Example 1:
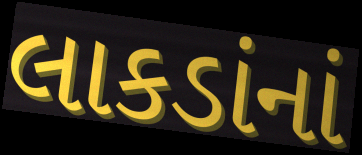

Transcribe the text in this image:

લાકડાંનાં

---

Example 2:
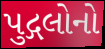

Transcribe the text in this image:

પુદ્ગલોનો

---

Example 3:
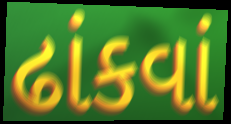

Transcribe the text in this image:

ઢાંકવાં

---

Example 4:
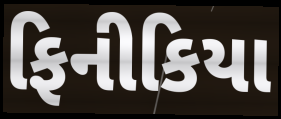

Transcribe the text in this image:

ફિનીકિયા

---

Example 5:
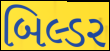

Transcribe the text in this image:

બિલ્ડર